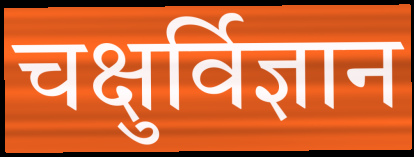
चक्षुर्विज्ञान